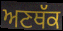
ਅਣਥੱਕ